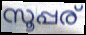
സൂപ്പര്